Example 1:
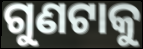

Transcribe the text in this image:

ଗୁଣଟାକୁ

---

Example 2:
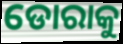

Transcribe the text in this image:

ଡୋରାକୁ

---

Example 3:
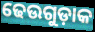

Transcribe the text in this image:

ଢେଉଗୁଡ଼ାକ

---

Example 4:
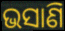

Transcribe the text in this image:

ଭସାଣି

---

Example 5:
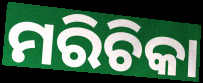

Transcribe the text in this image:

ମରିଚିକା